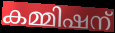
കമ്മിഷന്